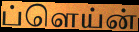
ப்ளெய்ன்